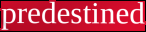
predestined